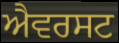
ਐਵਰਸਟ